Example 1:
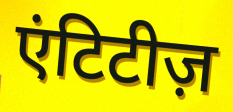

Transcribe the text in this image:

एंटिटीज़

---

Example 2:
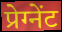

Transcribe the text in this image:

प्रेग्‍नेंट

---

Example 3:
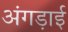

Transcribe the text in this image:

अंगड़ाई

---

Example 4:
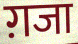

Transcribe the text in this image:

ग़जा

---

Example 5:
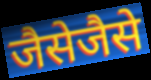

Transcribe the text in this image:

जैसेजैसे